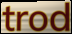
trod